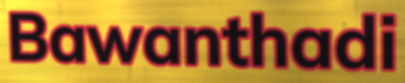
Bawanthadi